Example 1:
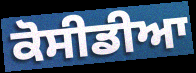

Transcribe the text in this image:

ਕੋਸੀਡੀਆ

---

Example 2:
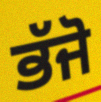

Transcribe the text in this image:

ਭੱਜੋ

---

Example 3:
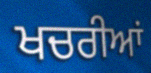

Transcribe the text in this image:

ਖਚਰੀਆਂ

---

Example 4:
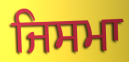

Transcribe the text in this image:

ਜਿਸਮਾ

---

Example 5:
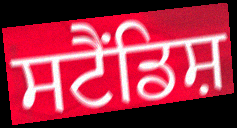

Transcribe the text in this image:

ਸਟੈਂਡਿਸ਼